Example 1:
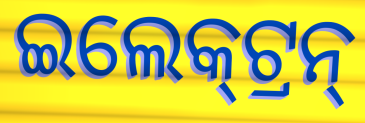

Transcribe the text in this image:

ଇଲେକ୍‌ଟ୍ରନ୍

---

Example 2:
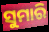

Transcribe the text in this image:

ସୁମାରି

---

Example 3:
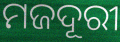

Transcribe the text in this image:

ମଜଦୂରୀ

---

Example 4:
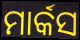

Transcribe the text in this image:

ମାର୍କସ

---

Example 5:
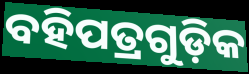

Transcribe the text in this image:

ବହିପତ୍ରଗୁଡ଼ିକ